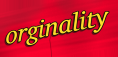
orginality